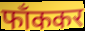
फाँककर